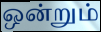
ஒன்றும்